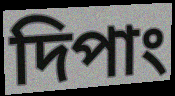
দিপাং